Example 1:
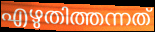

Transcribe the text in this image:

എഴുതിത്തന്നത്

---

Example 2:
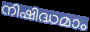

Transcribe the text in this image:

നിഷിദ്ധമാം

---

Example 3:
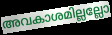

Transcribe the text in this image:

അവകാശമില്ലല്ലോ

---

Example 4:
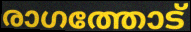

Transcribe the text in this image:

രാഗത്തോട്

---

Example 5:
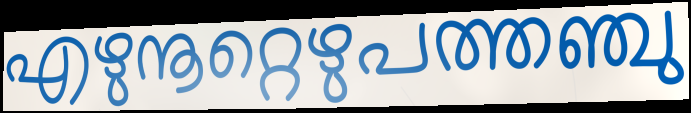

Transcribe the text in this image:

എഴുനൂറ്റെഴുപത്തഞ്ചു